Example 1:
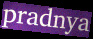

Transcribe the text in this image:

pradnya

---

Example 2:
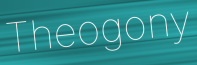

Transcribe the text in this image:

Theogony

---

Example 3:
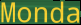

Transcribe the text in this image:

Monda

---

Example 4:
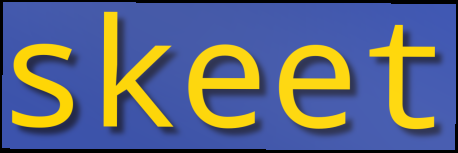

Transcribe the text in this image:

skeet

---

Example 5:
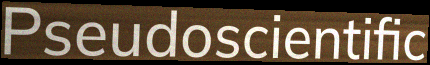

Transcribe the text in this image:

Pseudoscientific